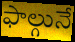
ఫాల్గునే